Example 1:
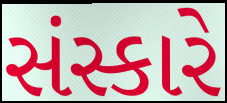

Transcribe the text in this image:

સંસ્કારે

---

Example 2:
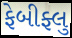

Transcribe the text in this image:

ફેબીફ્લુ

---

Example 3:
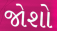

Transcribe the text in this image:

જોશો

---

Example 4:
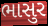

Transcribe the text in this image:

ભાસુર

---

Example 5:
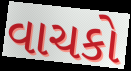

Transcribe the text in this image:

વાચકો